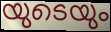
യുടെയും